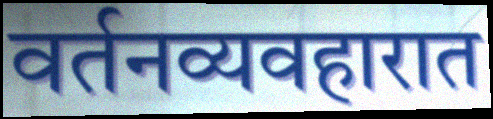
वर्तनव्यवहारात